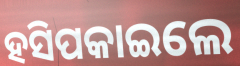
ହସିପକାଇଲେ